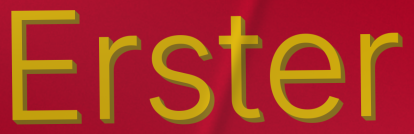
Erster